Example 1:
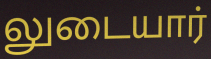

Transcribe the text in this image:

லுடையார்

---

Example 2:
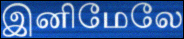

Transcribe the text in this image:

இனிமேலே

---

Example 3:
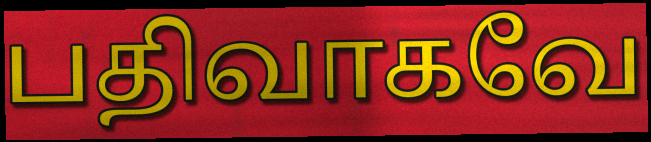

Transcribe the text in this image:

பதிவாகவே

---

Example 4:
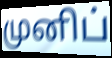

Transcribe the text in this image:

முனிப்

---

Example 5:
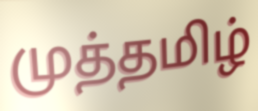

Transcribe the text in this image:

முத்தமிழ்